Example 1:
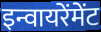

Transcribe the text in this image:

इन्वायरेंमेंट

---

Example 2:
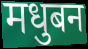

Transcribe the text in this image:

मधुबन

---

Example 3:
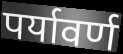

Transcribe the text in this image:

पर्यावर्ण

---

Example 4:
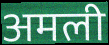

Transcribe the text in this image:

अमली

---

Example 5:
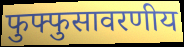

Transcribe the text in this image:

फुफ्फुसावरणीय